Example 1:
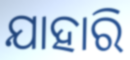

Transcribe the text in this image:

ଯାହାରି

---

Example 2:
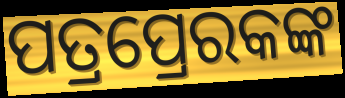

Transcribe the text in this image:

ପତ୍ରପ୍ରେରକଙ୍କ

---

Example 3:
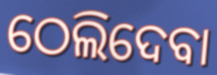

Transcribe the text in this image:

ଠେଲିଦେବା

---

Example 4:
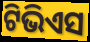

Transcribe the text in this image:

ଟିଭିଏସ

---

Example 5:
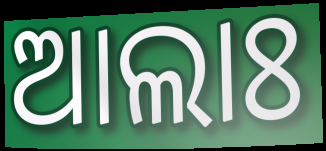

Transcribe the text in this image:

ଆଲାଃ